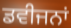
ਡਵੀਜਨਾਂ